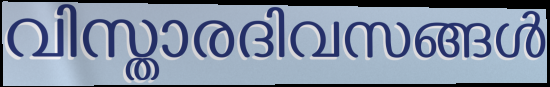
വിസ്താരദിവസങ്ങൾ